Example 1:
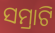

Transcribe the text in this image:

ସମ୍ରାଟି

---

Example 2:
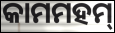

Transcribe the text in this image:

କାମମହମ୍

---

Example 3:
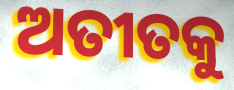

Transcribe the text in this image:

ଅତୀତକୁ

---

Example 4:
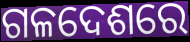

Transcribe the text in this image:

ଗଳଦେଶରେ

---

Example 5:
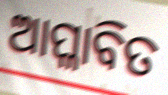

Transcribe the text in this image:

ଆପ୍ଳାବିତ